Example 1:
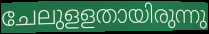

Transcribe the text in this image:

ചേലുളളതായിരുന്നു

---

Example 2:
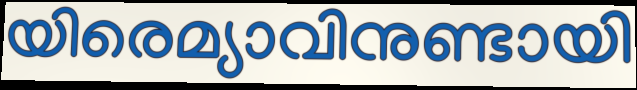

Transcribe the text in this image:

യിരെമ്യാവിനുണ്ടായി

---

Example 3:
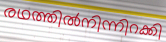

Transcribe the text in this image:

രഥത്തിൽനിന്നിറക്കി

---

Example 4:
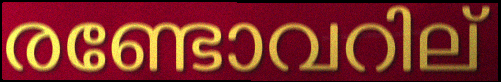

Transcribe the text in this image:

രണ്ടോവറില്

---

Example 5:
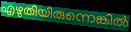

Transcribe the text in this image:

എഴുതിയിരുന്നെങ്കിൽ